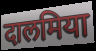
दालमिया